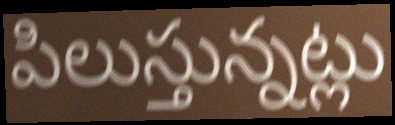
పిలుస్తున్నట్లు